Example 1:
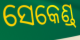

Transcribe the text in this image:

ସେକେଣ୍ଡ୍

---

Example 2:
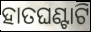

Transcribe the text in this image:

ହାତଘଣ୍ଟାଟି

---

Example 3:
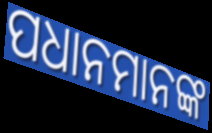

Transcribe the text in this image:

ପଧାନମାନଙ୍କ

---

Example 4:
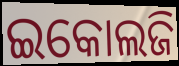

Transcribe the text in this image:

ଇକୋଲଜି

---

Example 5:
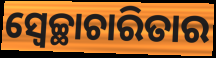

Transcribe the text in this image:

ସ୍ୱେଚ୍ଛାଚାରିତାର